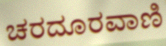
ಚರದೂರವಾಣಿ